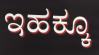
ಇಹಕ್ಕೂ